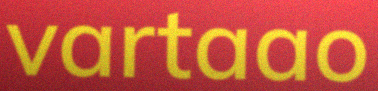
vartaao